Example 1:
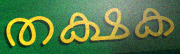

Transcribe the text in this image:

തക്ഷക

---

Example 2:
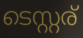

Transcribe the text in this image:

ടെസ്റ്റര്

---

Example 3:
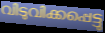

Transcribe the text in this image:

വിടുവിക്കപ്പെട്ടു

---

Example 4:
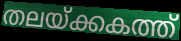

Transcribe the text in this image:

തലയ്ക്കകത്ത്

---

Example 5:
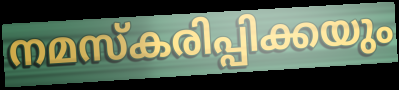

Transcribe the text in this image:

നമസ്കരിപ്പിക്കയും